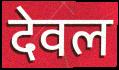
देवल